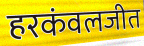
हरकंवलजीत